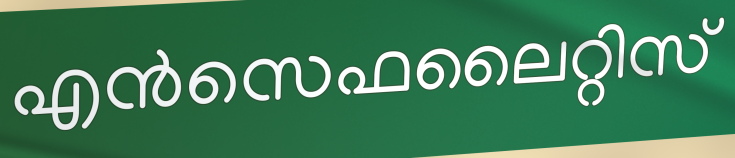
എൻസെഫലൈറ്റിസ്